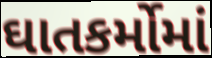
ઘાતકર્મોમાં